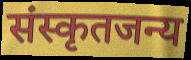
संस्कृतजन्य